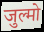
जुल्मो